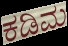
ಕಡಿಮ